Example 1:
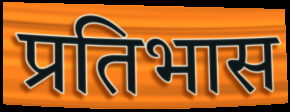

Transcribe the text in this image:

प्रतिभास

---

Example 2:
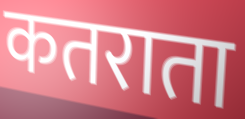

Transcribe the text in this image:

कतराता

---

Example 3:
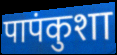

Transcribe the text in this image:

पापंकुशा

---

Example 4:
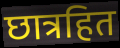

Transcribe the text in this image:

छात्रहित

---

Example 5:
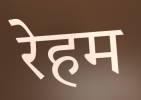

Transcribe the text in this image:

रेहम